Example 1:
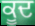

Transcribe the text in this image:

ਕੂਦ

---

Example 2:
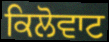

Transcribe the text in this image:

ਕਿਲੋਵਾਟ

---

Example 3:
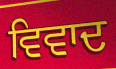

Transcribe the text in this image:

ਵਿਵਾਦ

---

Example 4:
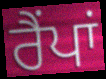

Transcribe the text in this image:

ਰੈਂਪਾਂ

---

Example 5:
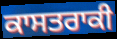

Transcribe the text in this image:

ਕਾਸਤਰਾਕੀ